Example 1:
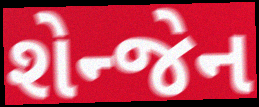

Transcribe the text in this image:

શેન્જેન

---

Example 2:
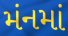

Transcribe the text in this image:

મંનમાં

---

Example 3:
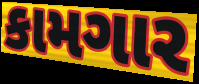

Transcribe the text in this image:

કામગાર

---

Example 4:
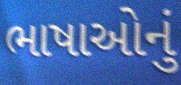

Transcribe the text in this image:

ભાષાઓનું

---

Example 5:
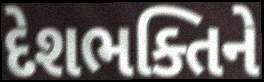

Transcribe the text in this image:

દેશભક્તિને